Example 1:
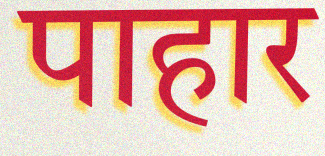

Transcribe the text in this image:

पाहार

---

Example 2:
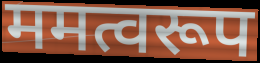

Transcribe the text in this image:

ममत्वरूप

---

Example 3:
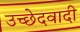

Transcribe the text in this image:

उच्छेदवादी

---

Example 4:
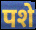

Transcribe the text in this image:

पशे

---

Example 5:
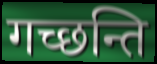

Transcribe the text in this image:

गच्छन्ति